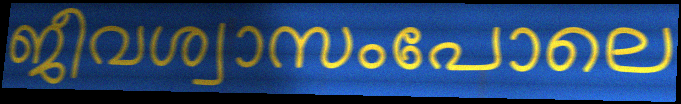
ജീവശ്വാസംപോലെ